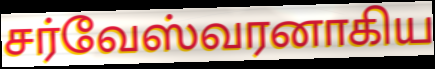
சர்வேஸ்வரனாகிய